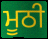
ਮੂਠੀ